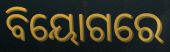
ବିୟୋଗରେ